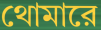
থোমারে